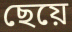
ছেয়ে